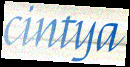
cintya